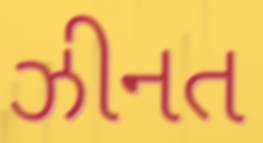
ઝીનત